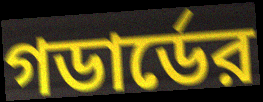
গডার্ডের